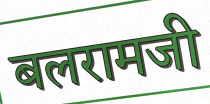
बलरामजी